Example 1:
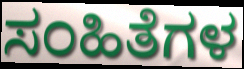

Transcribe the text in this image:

ಸಂಹಿತೆಗಳ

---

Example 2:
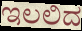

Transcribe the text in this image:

ಇಲಲಿದ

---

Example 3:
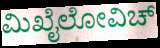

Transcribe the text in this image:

ಮಿಖೈಲೋವಿಚ್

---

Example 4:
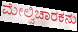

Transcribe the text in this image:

ಮೇಲ್ವಿಚಾರಕನು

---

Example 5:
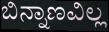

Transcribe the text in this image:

ಬಿನ್ನಾಣವಿಲ್ಲ